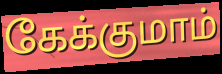
கேக்குமாம்